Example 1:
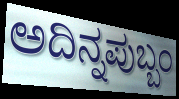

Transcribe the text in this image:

ಅದಿನ್ನಪುಬ್ಬಂ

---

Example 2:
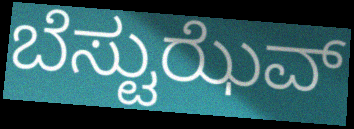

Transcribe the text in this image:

ಬೆಸ್ಟುಝೆವ್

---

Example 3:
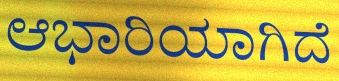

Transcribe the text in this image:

ಆಭಾರಿಯಾಗಿದೆ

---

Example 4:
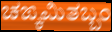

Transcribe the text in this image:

ಚಙ್ಕಮಿತಬ್ಬಂ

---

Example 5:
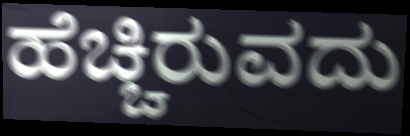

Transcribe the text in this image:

ಹೆಚ್ಚಿರುವದು